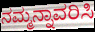
ನಮ್ಮನ್ನಾವರಿಸಿ